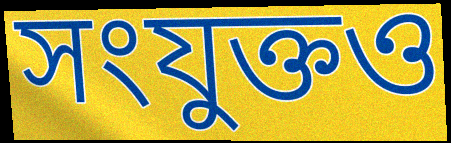
সংযুক্তও